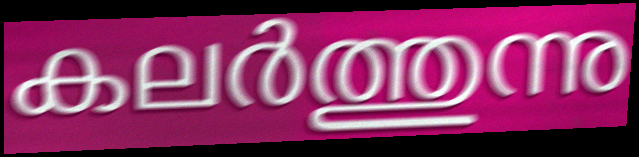
കലർത്തുന്നു